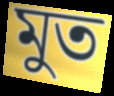
মুত